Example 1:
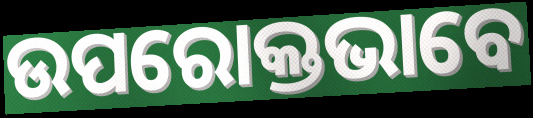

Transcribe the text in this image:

ଉପରୋକ୍ତଭାବେ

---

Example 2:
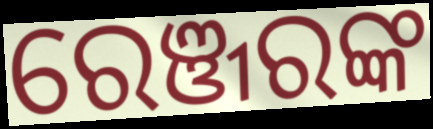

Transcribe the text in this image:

ରେଞ୍ଜରଙ୍କ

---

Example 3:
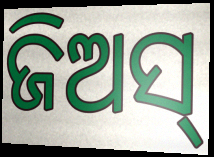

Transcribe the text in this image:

ଜିଅସ୍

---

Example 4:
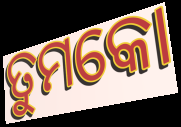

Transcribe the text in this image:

ତୁମକୋ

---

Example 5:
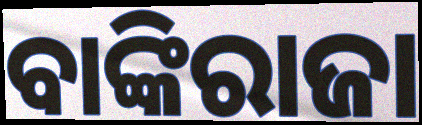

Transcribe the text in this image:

ବାଙ୍କିରାଜା